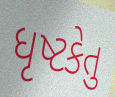
ધૃષ્ટકેતુ